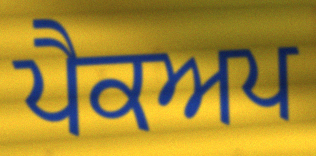
ਪੈਕਅਪ